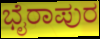
ಭೈರಾಪುರ